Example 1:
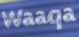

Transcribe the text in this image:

Waaqa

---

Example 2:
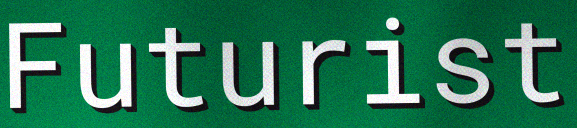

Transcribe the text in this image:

Futurist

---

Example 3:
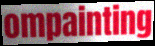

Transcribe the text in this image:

ompainting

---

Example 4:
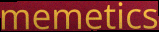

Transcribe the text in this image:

memetics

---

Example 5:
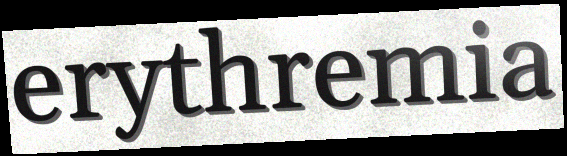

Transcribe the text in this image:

erythremia